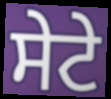
ਸੇਟੇ